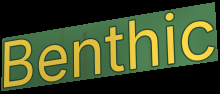
Benthic